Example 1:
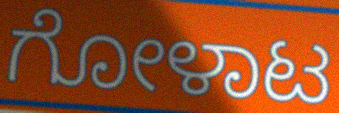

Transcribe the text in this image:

ಗೋಳಾಟ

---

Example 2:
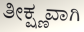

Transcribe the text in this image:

ತೀಕ್ಷ್ಣವಾಗಿ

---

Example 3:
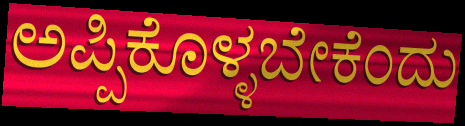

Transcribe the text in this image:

ಅಪ್ಪಿಕೊಳ್ಳಬೇಕೆಂದು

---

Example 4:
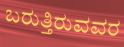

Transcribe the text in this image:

ಬರುತ್ತಿರುವವರ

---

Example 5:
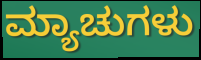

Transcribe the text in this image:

ಮ್ಯಾಚುಗಳು